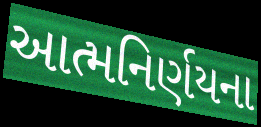
આત્મનિર્ણયના